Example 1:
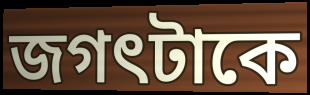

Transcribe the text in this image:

জগৎটাকে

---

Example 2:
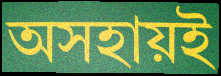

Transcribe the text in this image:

অসহায়ই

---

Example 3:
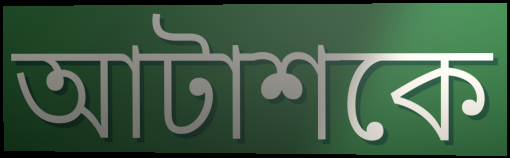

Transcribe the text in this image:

আটাশকে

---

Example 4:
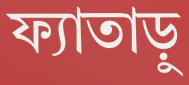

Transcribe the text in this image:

ফ্যাতাড়ু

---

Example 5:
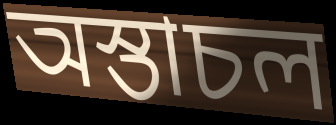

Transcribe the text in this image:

অস্তাচল